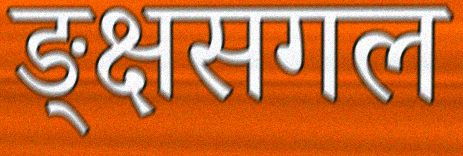
ङ्क्षसगल